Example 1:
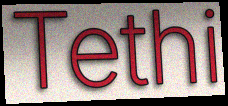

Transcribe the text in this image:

Tethi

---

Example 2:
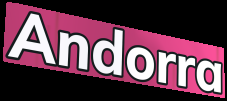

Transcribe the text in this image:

Andorra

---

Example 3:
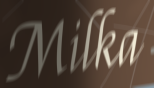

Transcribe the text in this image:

Milka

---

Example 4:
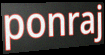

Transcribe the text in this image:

ponraj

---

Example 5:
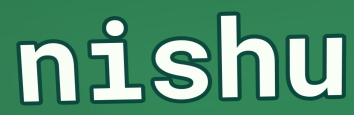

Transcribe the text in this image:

nishu